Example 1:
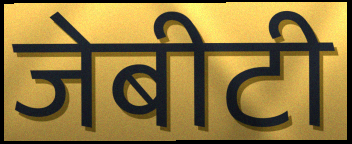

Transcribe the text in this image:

जेबीटी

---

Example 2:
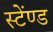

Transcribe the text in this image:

स्टेंण्ड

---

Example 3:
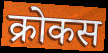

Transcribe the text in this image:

क्रोकस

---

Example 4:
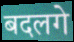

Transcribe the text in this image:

बदलगे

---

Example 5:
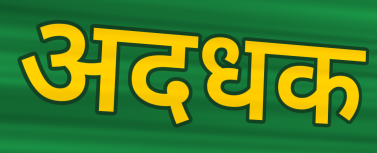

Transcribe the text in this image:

अदधक